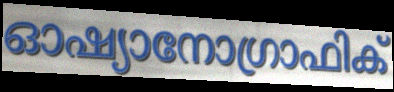
ഓഷ്യാനോഗ്രാഫിക്